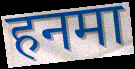
हनमा